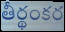
తీర్థంకర